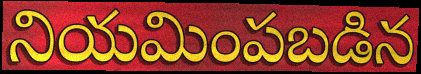
నియమింపబడిన